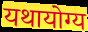
यथायोग्य